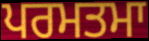
ਪਰਮਤਮਾ